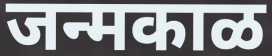
जन्मकाळ